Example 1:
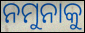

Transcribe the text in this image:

ନମୁନାକୁ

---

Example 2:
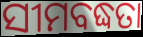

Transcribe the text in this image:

ସୀମବଦ୍ଧତା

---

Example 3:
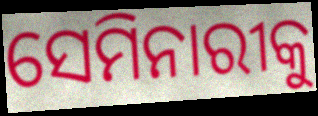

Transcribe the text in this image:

ସେମିନାରୀକୁ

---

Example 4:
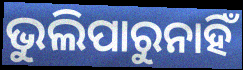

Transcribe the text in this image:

ଭୁଲିପାରୁନାହିଁ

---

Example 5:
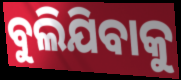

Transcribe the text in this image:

ବୁଲିଯିବାକୁ